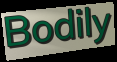
Bodily